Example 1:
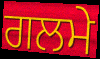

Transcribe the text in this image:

ਗਲਮੇ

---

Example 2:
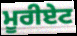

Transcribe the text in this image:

ਮੂਰੀਏਟ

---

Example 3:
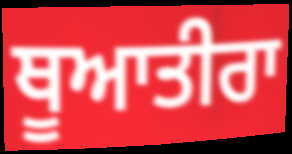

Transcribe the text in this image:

ਥੂਆਤੀਰਾ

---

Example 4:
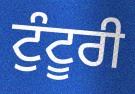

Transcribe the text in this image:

ਟੁੰਟੂਰੀ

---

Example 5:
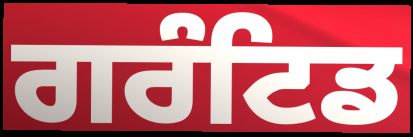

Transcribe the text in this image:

ਗਰੰਟਿਡ